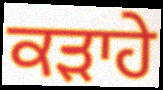
ਕੜਾਹੇ